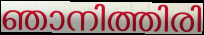
ഞാനിത്തിരി